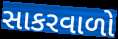
સાકરવાળો